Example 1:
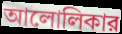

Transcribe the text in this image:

আলোলিকার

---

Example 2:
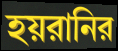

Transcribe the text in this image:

হয়রানির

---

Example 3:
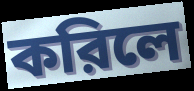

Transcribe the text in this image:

করিলে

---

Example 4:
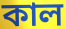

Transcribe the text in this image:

কাল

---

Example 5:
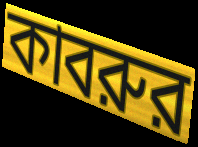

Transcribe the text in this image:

কাবরুর